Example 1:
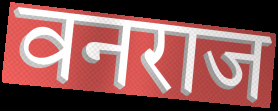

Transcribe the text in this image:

वनराज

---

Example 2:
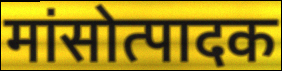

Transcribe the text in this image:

मांसोत्पादक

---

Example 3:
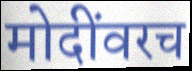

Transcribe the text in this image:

मोदींवरच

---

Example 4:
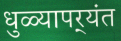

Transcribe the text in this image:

धुळ्यापर्यंत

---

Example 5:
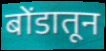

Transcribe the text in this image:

बोंडातून